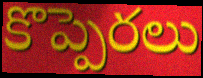
కొప్పెరలు